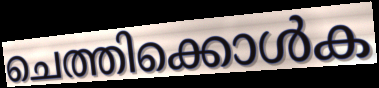
ചെത്തിക്കൊൾക